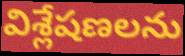
విశ్లేషణలను